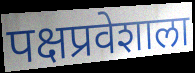
पक्षप्रवेशाला